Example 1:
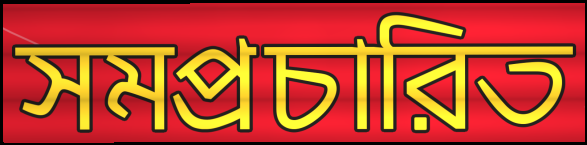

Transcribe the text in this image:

সমপ্রচারিত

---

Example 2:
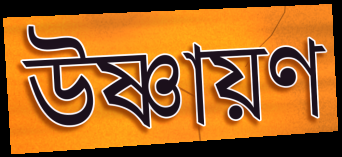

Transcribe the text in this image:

উষ্ণায়ণ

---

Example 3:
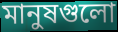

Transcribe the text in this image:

মানুষগুলো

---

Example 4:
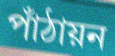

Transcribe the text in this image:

পাঁঠায়ন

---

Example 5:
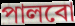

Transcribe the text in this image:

পালবো